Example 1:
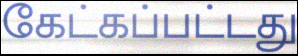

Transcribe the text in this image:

கேட்கப்பட்டது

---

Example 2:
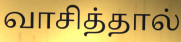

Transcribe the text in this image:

வாசித்தால்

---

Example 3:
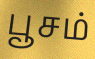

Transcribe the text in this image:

பூசம்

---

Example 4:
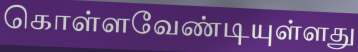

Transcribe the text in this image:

கொள்ளவேண்டியுள்ளது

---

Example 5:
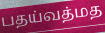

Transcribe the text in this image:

பதய்வத்மத